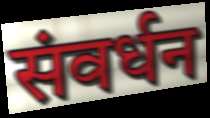
संवर्धन